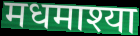
मधमाश्या